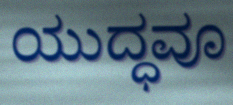
ಯುದ್ಧವೂ